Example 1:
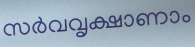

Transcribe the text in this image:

സർവവൃക്ഷാണാം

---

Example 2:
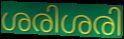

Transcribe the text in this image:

ശരിശരി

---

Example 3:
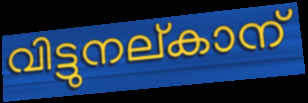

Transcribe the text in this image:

വിട്ടുനല്കാന്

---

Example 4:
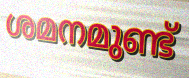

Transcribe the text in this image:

ശമനമുണ്ട്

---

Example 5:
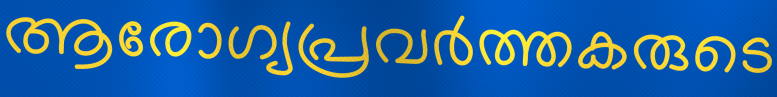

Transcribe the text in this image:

ആരോഗ്യപ്രവർത്തകരുടെ